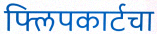
फ्लिपकार्टचा